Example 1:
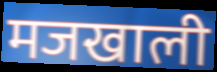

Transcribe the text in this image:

मजखाली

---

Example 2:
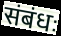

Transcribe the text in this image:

संबंधः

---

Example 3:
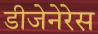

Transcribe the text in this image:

डीजेनेरेस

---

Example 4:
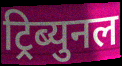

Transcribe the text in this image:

ट्रिब्युनल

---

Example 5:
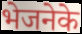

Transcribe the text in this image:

भेजनेके